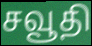
சவூதி